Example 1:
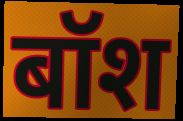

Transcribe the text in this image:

बॉश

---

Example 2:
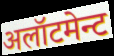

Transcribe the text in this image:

अलॉटमेन्ट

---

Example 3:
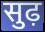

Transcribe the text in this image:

सुढ़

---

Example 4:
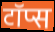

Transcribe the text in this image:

टॉप्स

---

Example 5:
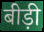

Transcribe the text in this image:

बीड़ी